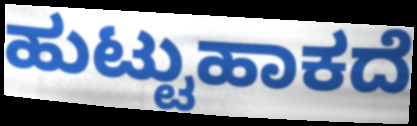
ಹುಟ್ಟುಹಾಕದೆ